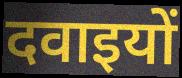
दवाइयों